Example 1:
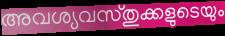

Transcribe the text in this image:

അവശ്യവസ്തുക്കളുടെയും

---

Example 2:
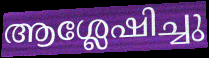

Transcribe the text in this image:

ആശ്ലേഷിച്ചു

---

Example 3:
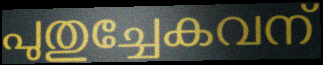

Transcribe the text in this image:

പുതുച്ചേകവന്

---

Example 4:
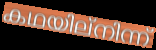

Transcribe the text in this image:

കഥയില്നിന്ന്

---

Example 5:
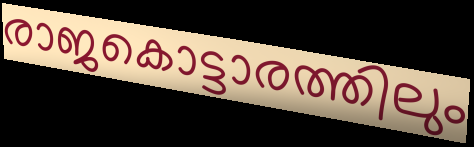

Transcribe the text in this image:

രാജകൊട്ടാരത്തിലും